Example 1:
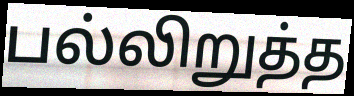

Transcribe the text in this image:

பல்லிறுத்த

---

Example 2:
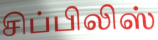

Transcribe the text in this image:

சிப்பிலிஸ்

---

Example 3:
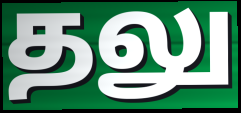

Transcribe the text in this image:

தலு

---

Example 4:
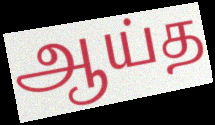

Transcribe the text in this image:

ஆய்த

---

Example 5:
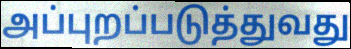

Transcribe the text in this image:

அப்புறப்படுத்துவது